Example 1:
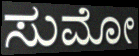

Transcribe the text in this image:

ಸುಮೋ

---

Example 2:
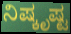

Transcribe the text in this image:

ನಿಷ್ಕೃಷ್ಟ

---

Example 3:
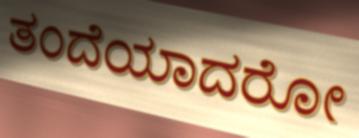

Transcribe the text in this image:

ತಂದೆಯಾದರೋ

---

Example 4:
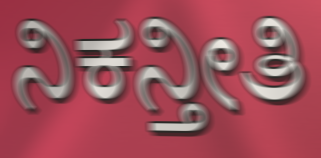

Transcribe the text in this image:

ನಿಕನ್ತೀತಿ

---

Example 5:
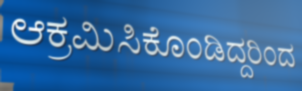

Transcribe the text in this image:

ಆಕ್ರಮಿಸಿಕೊಂಡಿದ್ದರಿಂದ